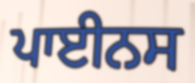
ਪਾਈਨਸ